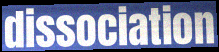
dissociation